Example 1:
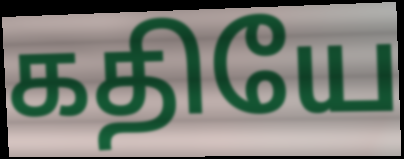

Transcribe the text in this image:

கதியே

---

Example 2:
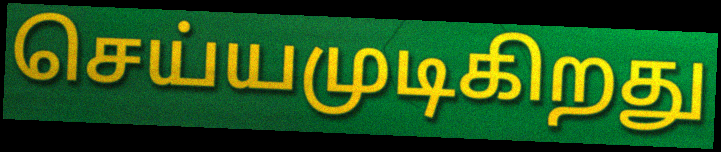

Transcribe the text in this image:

செய்யமுடிகிறது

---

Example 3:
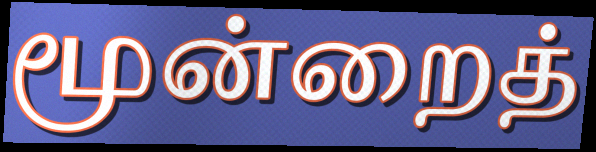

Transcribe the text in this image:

மூன்றைத்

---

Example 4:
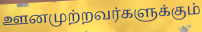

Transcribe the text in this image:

ஊனமுற்றவர்களுக்கும்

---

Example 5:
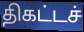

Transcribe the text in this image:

திகட்டச்